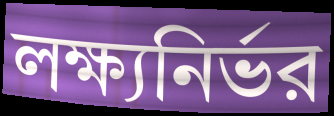
লক্ষ্যনির্ভর